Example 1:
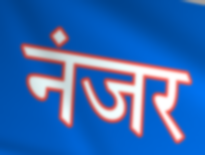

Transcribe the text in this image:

नंजर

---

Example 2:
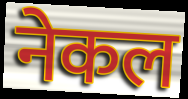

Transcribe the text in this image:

नेकल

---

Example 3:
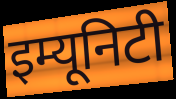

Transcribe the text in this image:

इम्‍यूनिटी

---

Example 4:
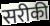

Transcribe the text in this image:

सरीकी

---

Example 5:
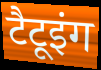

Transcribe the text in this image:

टैटूइंग